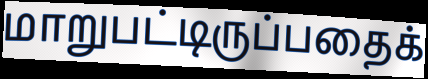
மாறுபட்டிருப்பதைக்